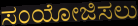
ಸಂಯೋಜಿಸಲು